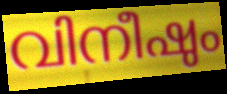
വിനീഷും